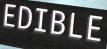
EDIBLE